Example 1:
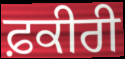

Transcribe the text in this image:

ਫ਼ਕੀਰੀ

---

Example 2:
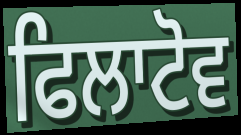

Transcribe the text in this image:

ਫਿਲਾਟੋਵ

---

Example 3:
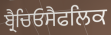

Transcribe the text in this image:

ਬ੍ਰੈਚਿਓਸੈਫਲਿਕ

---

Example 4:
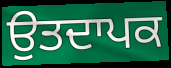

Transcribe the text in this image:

ਉਤਦਾਪਕ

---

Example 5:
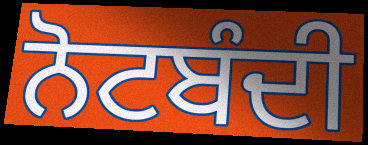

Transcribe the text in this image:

ਨੋਟਬੰਦੀ